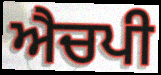
ਐਚਪੀ